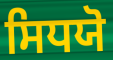
ਸਿਧਯੋ